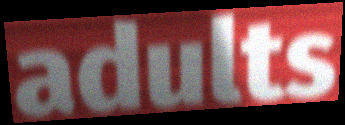
adults